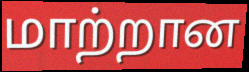
மாற்றான